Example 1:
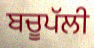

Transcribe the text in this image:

ਬਚੂਪੱਲੀ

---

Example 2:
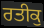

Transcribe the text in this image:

ਰਤੀਕੁ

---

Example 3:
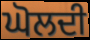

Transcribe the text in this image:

ਘੋਲਦੀ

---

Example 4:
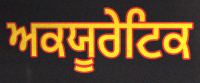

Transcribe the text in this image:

ਅਕਯੂਰੇਟਿਕ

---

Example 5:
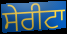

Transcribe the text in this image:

ਸੇਰੀਟਾ